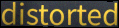
distorted